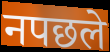
नपछले